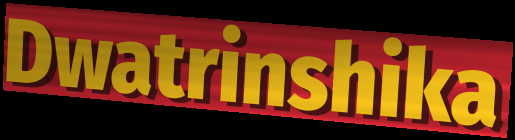
Dwatrinshika